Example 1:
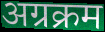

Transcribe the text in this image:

अग्रक्रम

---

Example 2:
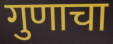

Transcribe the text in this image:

गुणाचा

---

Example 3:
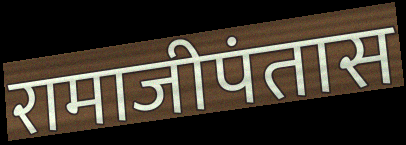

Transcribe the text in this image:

रामाजीपंतास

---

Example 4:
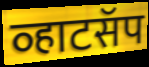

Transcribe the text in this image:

व्हाटसॅप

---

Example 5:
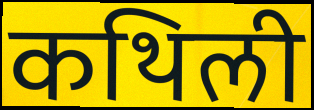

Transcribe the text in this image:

कथिली